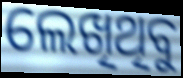
ଲେଖିଥିବୁ